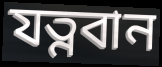
যত্নবান